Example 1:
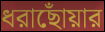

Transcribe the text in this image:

ধরাছোঁয়ার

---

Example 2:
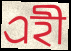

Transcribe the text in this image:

এহী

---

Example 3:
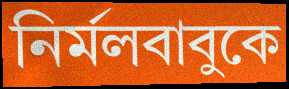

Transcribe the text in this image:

নির্মলবাবুকে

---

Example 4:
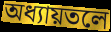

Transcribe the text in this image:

অধ্যায়তলে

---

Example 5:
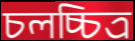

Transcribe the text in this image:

চলচ্চিত্র